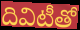
దివిటీతో